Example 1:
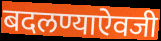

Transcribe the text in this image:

बदलण्याऐवजी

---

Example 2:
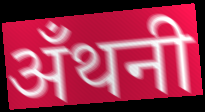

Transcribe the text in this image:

अँथनी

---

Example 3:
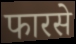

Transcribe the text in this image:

फारसे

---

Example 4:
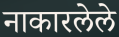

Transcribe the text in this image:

नाकारलेले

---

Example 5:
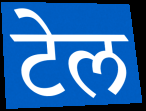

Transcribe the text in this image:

टेल